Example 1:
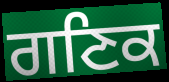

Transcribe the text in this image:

ਗਣਿਕ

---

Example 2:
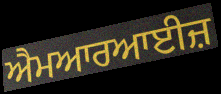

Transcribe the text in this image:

ਐਮਆਰਆਈਜ਼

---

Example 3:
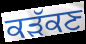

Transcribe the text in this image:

ਕੜੱਕਣ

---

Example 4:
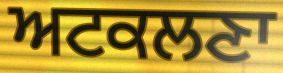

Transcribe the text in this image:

ਅਟਕਲਣਾ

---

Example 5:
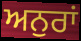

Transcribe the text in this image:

ਅਨੁਰਾਂ